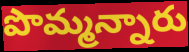
పొమ్మన్నారు